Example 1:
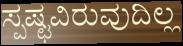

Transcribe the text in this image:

ಸ್ಪಷ್ಟವಿರುವುದಿಲ್ಲ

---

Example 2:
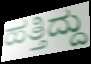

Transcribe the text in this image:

ಹತ್ತಿದ್ದು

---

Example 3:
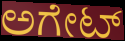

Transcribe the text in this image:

ಅಗೇಟ್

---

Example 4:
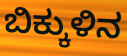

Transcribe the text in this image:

ಬಿಕ್ಕುಳಿನ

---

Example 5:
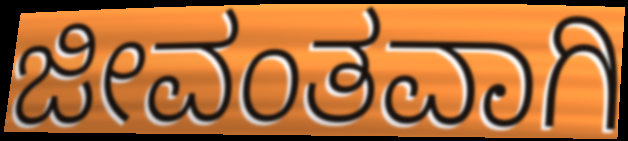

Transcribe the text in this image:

ಜೀವಂತವಾಗಿ